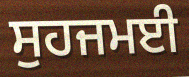
ਸੁਹਜਮਈ